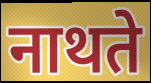
नाथते